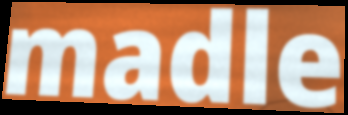
madle